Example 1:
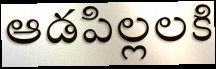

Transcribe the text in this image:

ఆడపిల్లలకి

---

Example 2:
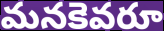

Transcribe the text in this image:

మనకెవరూ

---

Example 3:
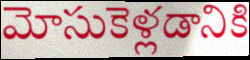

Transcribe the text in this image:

మోసుకెళ్లడానికి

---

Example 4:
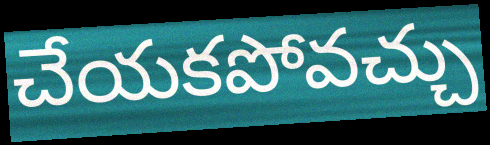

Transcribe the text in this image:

చేయకపోవచ్చు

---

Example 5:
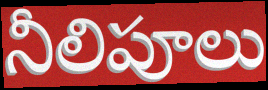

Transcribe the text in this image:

నీలిపూలు